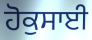
ਹੋਕੁਸਾਈ